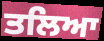
ਤਲਿਆ